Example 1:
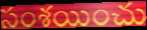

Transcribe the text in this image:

సంశయించు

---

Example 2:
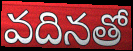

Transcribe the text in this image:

వదినతో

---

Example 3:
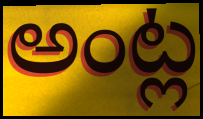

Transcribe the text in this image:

అంట్ల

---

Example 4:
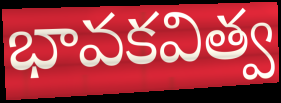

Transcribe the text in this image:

భావకవిత్వ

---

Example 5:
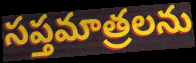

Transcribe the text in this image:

సప్తమాత్రలను